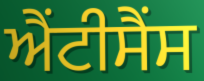
ਐਂਟੀਸੈਂਸ